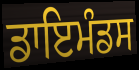
ਡਾਇਮੰਡਸ